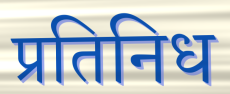
प्रतिनिध